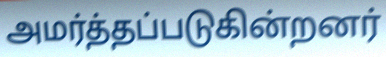
அமர்த்தப்படுகின்றனர்